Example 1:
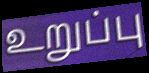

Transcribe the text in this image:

உறுப்பு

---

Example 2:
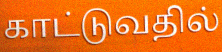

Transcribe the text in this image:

காட்டுவதில்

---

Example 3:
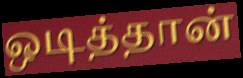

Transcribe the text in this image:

ஒடித்தான்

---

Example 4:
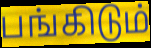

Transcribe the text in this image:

பங்கிடும்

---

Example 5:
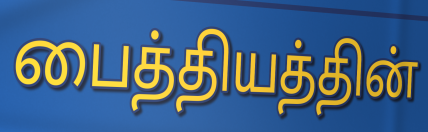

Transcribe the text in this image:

பைத்தியத்தின்